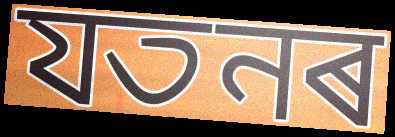
যতনৰ